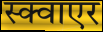
स्क्वाएर